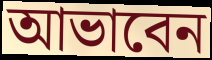
আভাবেন